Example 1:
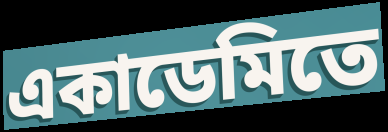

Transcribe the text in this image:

একাডেমিতে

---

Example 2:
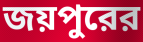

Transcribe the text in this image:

জয়পুরের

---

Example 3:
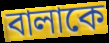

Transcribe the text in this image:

বালাকে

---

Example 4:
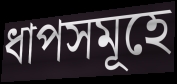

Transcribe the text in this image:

ধাপসমূহে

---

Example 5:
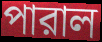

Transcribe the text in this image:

পারাল